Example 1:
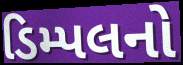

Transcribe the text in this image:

ડિમ્પલનો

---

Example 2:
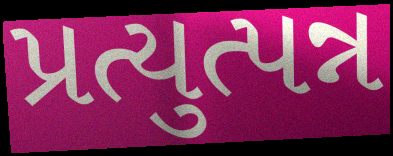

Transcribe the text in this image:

પ્રત્યુત્પન્ન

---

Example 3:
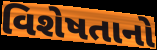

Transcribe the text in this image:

વિશેષતાનો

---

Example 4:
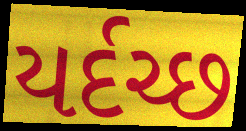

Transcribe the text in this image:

યર્દચ્છ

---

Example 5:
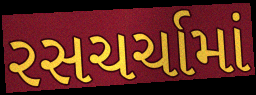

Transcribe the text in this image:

રસચર્ચામાં